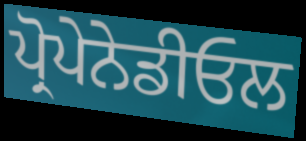
ਪ੍ਰੋਪੇਨੇਡੀਓਲ